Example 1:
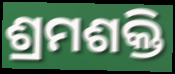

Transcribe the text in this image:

ଶ୍ରମଶକ୍ତି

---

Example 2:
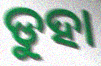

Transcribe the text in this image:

ଡୁହା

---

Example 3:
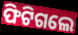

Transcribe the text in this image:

ଫିଟିଗଲେ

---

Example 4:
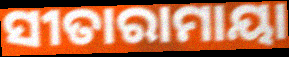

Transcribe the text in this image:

ସୀତାରାମାୟା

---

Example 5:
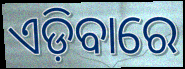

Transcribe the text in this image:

ଏଡ଼ିବାରେ